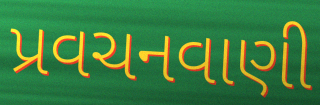
પ્રવચનવાણી